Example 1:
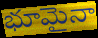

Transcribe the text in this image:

భూమైనా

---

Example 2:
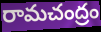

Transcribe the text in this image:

రామచంద్రం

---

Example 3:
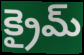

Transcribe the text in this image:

క్రైమ్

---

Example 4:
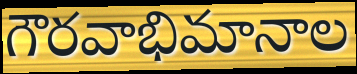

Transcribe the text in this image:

గౌరవాభిమానాల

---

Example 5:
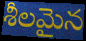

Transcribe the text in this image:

శీలమైన